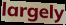
largely